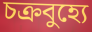
চক্রবুহ্যে